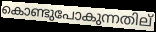
കൊണ്ടുപോകുന്നതില്